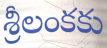
శ్రీలంకకు